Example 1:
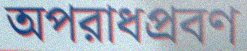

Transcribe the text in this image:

অপরাধপ্রবণ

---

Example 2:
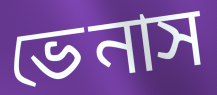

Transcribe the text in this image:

ভেনাস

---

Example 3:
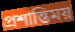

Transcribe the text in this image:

প্রশান্তিময়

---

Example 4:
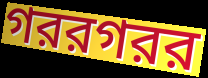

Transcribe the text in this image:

গররগরর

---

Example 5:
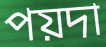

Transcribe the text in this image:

পয়দা